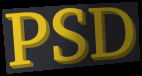
PSD